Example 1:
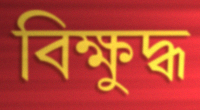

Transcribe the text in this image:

বিক্ষুদ্ধ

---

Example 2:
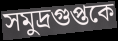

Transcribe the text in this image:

সমুদ্রগুপ্তকে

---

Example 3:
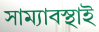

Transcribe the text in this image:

সাম্যাবস্থাই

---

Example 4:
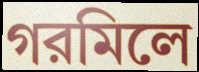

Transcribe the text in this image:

গরমিলে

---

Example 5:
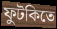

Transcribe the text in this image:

ফুটকিতে